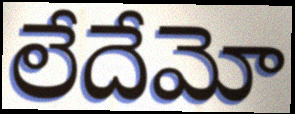
లేదేమో